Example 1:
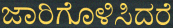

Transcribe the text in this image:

ಜಾರಿಗೊಳಿಸಿದರೆ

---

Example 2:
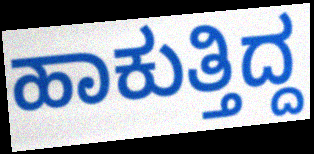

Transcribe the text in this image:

ಹಾಕುತ್ತಿದ್ದ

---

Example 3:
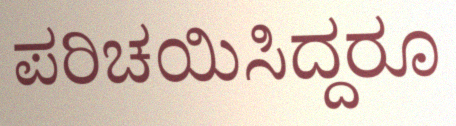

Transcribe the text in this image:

ಪರಿಚಯಿಸಿದ್ದರೂ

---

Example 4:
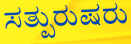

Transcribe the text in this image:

ಸತ್ಪುರುಷರು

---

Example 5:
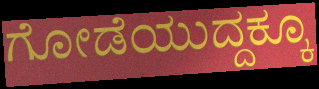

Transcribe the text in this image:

ಗೋಡೆಯುದ್ದಕ್ಕೂ